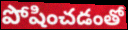
పోషించడంతో